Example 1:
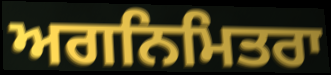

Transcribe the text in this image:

ਅਗਨਿਮਿਤਰਾ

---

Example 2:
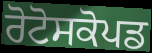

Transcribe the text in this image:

ਰੋਟੋਸਕੋਪਡ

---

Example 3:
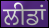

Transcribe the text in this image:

ਲੀਡਾਂ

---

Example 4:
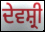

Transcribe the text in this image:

ਦੇਵਸ਼੍ਰੀ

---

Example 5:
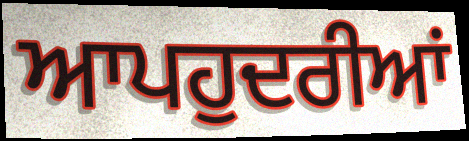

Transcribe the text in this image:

ਆਪਹੁਦਰੀਆਂ